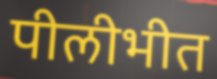
पीलीभीत